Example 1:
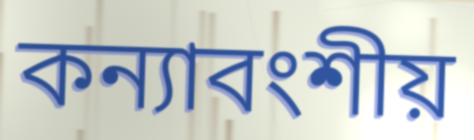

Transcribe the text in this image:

কন্যাবংশীয়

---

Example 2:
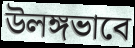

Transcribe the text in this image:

উলঙ্গভাবে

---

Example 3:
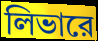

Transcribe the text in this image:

লিভারে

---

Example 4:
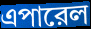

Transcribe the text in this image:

এপারেল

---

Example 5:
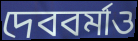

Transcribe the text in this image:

দেববর্মাও